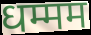
धम्मम